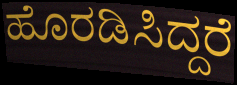
ಹೊರಡಿಸಿದ್ದರೆ